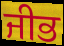
ਜੀਭ